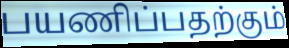
பயணிப்பதற்கும்